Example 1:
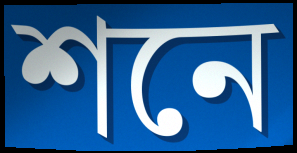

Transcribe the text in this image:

শনে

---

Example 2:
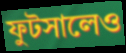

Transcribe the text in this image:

ফুটসালেও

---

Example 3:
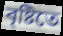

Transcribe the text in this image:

বৃষ্টিতে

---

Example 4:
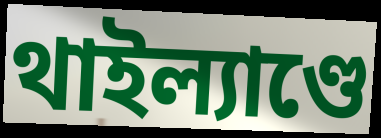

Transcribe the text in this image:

থাইল্যাণ্ডে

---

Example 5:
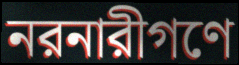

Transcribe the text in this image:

নরনারীগণে